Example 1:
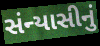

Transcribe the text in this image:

સંન્યાસીનું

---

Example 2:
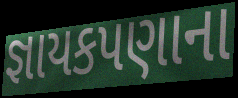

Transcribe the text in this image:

જ્ઞાયકપણાના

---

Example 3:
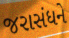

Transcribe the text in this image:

જરાસંધને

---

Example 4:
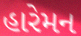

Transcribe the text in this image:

હારેમન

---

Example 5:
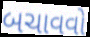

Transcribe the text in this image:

બચાવવો